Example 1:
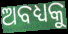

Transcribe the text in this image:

ଅବଧ୍ୟକୁ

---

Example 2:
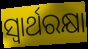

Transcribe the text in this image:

ସ୍ଵାର୍ଥରକ୍ଷା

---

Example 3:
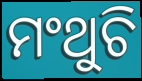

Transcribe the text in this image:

ମଂଥୁଚି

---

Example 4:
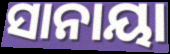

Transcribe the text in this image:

ସାନାୟା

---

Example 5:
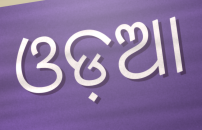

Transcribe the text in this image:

ଓଡ଼ଆ